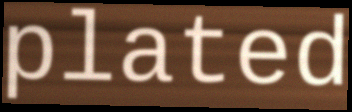
plated